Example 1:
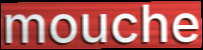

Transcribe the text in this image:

mouche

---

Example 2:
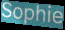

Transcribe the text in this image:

Sophie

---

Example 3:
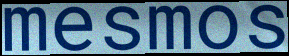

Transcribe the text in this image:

mesmos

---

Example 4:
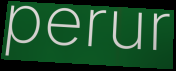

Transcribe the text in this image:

perur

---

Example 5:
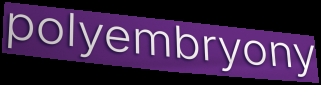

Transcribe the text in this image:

polyembryony